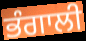
ਭੰਗਾਲੀ